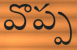
వొప్ప